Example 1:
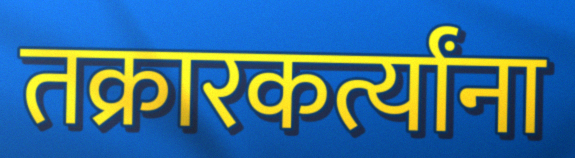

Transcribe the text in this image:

तक्रारकर्त्यांना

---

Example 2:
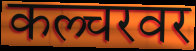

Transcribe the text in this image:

कल्चरवर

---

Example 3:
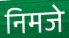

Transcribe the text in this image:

निमजे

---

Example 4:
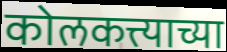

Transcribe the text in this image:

कोलकत्त्याच्या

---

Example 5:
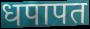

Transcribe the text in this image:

धपापत